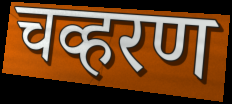
चव्हरण